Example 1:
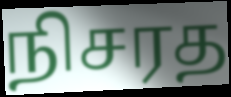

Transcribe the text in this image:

நிசரத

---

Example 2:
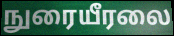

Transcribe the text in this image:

நுரையீரலை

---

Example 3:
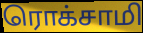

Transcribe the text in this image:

ரொக்சாமி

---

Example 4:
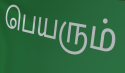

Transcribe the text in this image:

பெயரும்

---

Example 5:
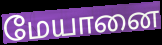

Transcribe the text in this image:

மேயானை